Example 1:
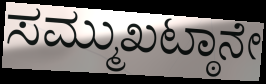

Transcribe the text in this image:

ಸಮ್ಮುಖಟ್ಠಾನೇ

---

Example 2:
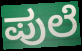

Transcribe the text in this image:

ಪುಲೆ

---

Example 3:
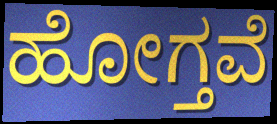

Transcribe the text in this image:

ಹೋಗ್ತವೆ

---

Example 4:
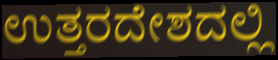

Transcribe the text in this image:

ಉತ್ತರದೇಶದಲ್ಲಿ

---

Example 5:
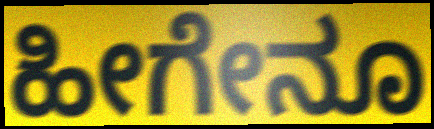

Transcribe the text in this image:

ಹೀಗೇನೂ